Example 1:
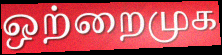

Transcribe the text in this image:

ஒற்றைமுக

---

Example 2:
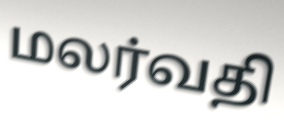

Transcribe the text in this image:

மலர்வதி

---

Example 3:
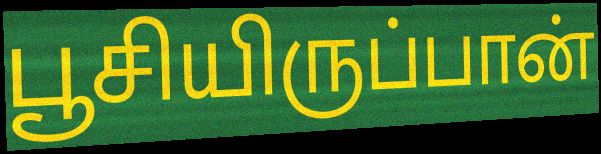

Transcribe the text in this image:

பூசியிருப்பான்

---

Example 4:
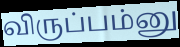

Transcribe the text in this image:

விருப்பம்னு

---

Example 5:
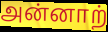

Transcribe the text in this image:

அன்னாற்